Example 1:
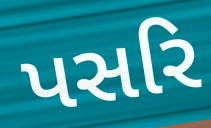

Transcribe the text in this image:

પસરિ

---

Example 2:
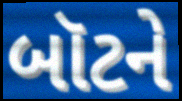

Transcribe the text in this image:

બૉટને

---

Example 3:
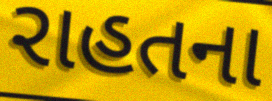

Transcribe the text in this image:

રાહતના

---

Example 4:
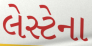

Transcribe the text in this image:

લેસ્ટેના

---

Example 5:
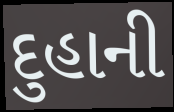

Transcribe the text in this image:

દુહાની